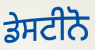
ਡੇਸਟੀਨੋ